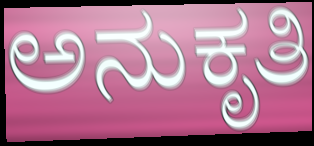
ಅನುಕೃತಿ